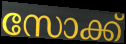
സോക്ക്